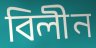
বিলীন